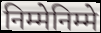
निम्मेनिम्मे